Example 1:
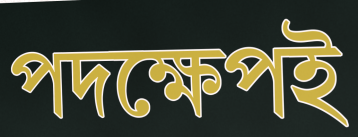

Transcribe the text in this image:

পদক্ষেপই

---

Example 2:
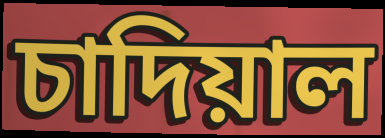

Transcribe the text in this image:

চাদিয়াল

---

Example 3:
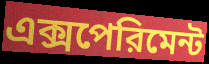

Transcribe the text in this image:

এক্সপেরিমেন্ট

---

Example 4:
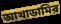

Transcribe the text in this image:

আখাডামির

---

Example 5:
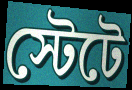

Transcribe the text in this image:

স্টেটে